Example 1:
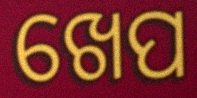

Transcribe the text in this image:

ଖେପ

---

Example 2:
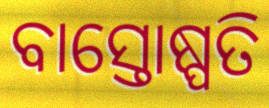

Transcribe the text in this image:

ବାସ୍ତୋଷ୍ପତି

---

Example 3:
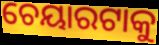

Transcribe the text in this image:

ଚେୟାରଟାକୁ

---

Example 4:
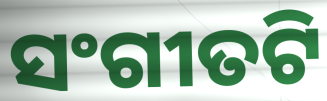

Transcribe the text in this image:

ସଂଗୀତଟି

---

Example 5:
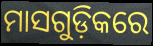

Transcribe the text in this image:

ମାସଗୁଡ଼ିକରେ